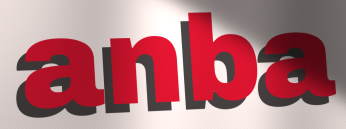
anba